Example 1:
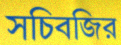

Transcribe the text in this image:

সচিবজির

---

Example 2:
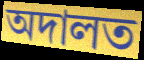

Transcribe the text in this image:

অদালত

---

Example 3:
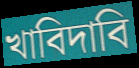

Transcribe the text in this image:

খাবিদাবি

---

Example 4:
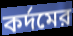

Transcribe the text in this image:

কর্দমের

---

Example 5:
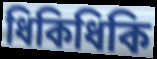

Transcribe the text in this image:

ধিকিধিকি